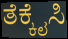
ತೆಕ್ಕೈಸಿ